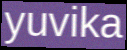
yuvika